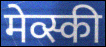
मेव्स्की